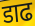
डाढ